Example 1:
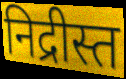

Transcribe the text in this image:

निद्रीस्त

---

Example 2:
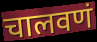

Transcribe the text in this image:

चालवणं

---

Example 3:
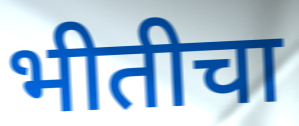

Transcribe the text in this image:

भीतीचा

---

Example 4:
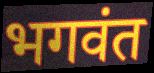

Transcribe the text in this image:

भगवंत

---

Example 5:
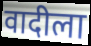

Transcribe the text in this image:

वादीला